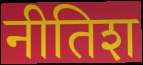
नीतिश